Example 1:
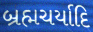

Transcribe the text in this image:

બ્રહ્મચર્યાદિ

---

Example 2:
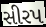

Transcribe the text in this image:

સીરપ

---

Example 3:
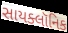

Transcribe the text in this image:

સાયક્લૉનિક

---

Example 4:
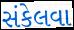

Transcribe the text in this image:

સંકેલવા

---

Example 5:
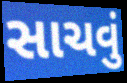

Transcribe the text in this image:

સાચવું